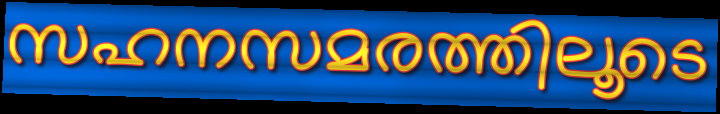
സഹനസമരത്തിലൂടെ